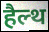
हैल्थ